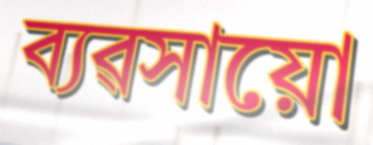
ব্যৱসায়ো